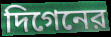
দিগেনের